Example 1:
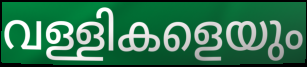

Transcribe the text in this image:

വള്ളികളെയും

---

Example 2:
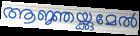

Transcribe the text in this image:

ആജ്ഞയ്ക്കുമേൽ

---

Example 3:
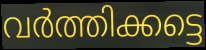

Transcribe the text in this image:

വർത്തിക്കട്ടെ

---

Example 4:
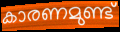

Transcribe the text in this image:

കാരണമുണ്ട്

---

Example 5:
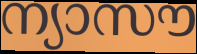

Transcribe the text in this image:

ന്യാസൗ